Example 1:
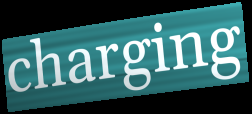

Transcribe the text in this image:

charging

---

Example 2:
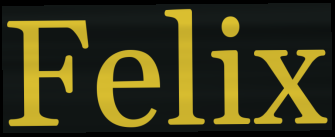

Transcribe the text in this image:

Felix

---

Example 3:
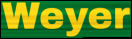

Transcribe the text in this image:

Weyer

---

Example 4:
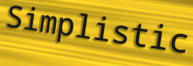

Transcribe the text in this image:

Simplistic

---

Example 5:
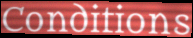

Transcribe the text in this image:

Conditions